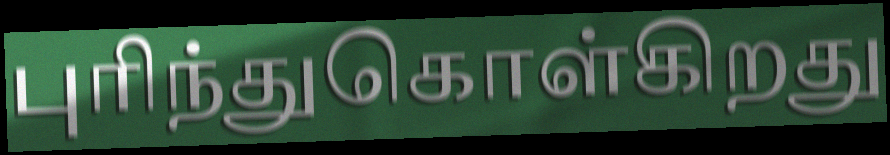
புரிந்துகொள்கிறது